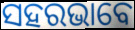
ସହରଭାବେ